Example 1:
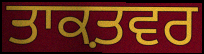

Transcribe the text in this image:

ਤਾਕ਼ਤਵਰ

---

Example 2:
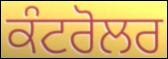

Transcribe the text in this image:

ਕੰਟਰੋਲਰ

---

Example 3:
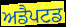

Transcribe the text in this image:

ਅਡੈਪਟਡ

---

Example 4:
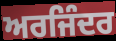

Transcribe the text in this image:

ਅਰਜਿੰਦਰ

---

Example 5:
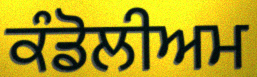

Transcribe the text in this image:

ਕੰਡੋਲੀਅਮ